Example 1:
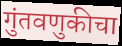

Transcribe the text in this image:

गुंतवणुकीचा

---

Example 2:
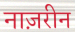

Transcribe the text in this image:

नाज़रीन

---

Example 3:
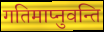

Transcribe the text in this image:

गतिमाप्नुवन्ति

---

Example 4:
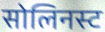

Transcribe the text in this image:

सोलिनस्ट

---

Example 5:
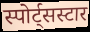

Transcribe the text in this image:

स्पोर्ट्सस्टार